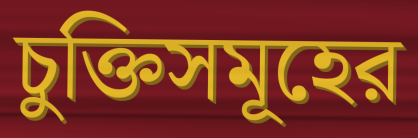
চুক্তিসমূহের